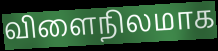
விளைநிலமாக